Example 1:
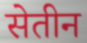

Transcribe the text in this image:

सेतीन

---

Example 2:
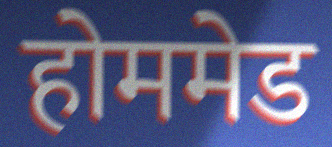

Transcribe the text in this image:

होममेड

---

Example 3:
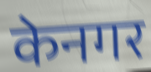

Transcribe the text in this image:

केनगर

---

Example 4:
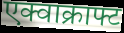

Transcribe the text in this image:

एक्वाक्राफ्ट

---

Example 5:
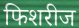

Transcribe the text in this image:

फिशरीज